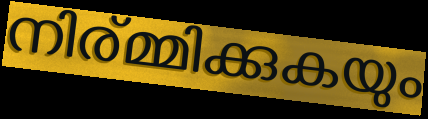
നിര്മ്മിക്കുകയും